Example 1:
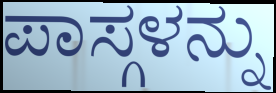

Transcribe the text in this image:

ಪಾಸ್ಗಳನ್ನು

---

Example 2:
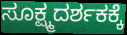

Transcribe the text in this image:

ಸೂಕ್ಷ್ಮದರ್ಶಕಕ್ಕೆ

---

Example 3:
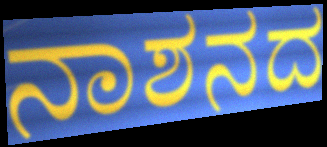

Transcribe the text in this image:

ನಾಶನದ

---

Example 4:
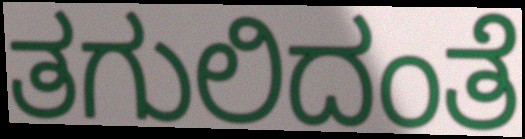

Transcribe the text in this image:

ತಗುಲಿದಂತೆ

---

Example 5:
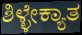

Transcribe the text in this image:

ಶಿಳ್ಳೇಕ್ಯಾತ